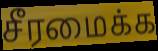
சீரமைக்க